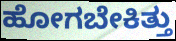
ಹೋಗಬೇಕಿತ್ತು